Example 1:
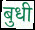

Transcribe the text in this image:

बुधी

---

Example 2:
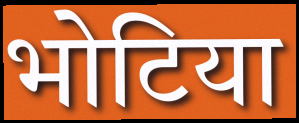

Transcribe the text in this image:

भोटिया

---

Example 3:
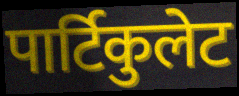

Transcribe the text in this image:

पार्टिकुलेट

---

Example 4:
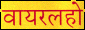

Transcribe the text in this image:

वायरलहो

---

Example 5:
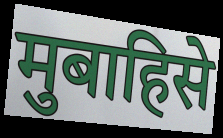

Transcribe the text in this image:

मुबाहिसे